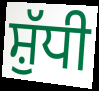
ਸ਼ੁੱਧੀ